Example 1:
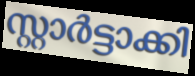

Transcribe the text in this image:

സ്റ്റാർട്ടാക്കി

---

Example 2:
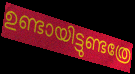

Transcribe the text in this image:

ഉണ്ടായിട്ടുണ്ടത്രേ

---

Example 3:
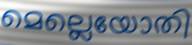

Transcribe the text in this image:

മെല്ലെയോതി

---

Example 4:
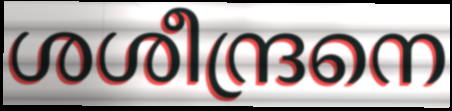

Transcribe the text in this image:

ശശീന്ദ്രനെ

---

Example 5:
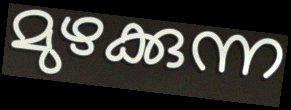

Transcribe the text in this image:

മുഴക്കുന്ന